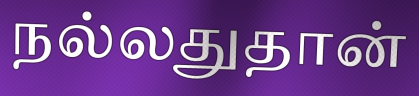
நல்லதுதான்